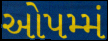
ઓપમ્મં